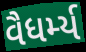
વૈધર્મ્ય